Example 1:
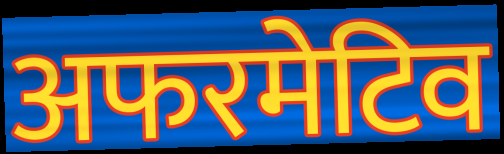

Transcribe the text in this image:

अफरमेटिव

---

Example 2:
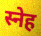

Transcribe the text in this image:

स्नेह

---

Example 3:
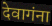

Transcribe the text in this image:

देवागंना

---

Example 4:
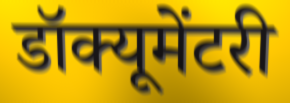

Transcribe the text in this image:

डॉक्यूमेंटरी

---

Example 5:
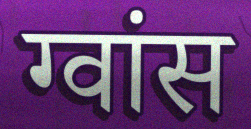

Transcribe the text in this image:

ग्वांस